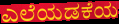
ಎಲೆಯಡಕೆಯ